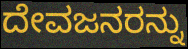
ದೇವಜನರನ್ನು